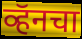
व्हॅनचा